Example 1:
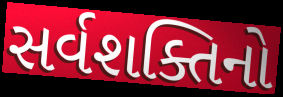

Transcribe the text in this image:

સર્વશક્તિનો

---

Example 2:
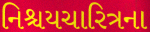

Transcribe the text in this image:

નિશ્ચયચારિત્રના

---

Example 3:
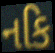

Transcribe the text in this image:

નકિ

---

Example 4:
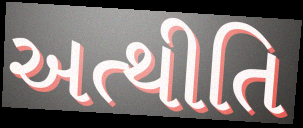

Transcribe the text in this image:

અત્થીતિ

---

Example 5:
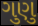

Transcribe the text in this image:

ગુણુ